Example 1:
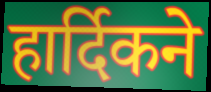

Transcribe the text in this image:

हार्दिकने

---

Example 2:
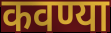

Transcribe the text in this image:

कवण्या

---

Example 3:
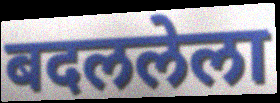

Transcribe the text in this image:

बदललेला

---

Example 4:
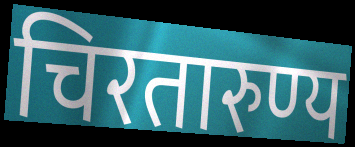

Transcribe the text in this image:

चिरतारुण्य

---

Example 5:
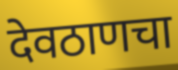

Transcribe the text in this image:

देवठाणचा